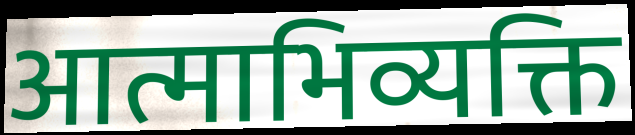
आत्माभिव्यक्ति